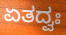
ಏತದ್ವಃ